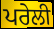
ਪਰੇਲੀ